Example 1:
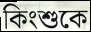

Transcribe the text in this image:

কিংশুকে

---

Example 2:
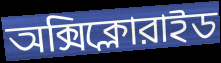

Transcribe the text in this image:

অক্সিক্লোরাইড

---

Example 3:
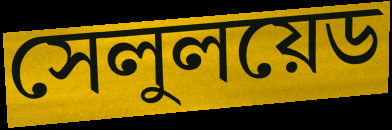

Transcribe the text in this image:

সেলুলয়েড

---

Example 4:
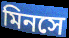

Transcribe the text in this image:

মিনসে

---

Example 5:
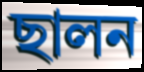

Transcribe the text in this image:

ছালন